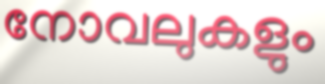
നോവലുകളും